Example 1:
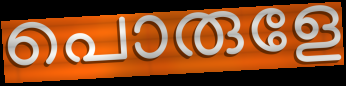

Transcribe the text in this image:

പൊരുളേ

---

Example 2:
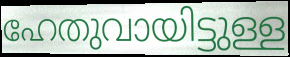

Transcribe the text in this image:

ഹേതുവായിട്ടുള്ള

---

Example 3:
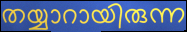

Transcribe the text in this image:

തയ്യാറായിരുന്ന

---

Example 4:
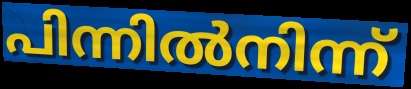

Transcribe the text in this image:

പിന്നിൽനിന്ന്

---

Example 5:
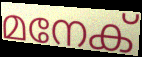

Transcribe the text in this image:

മനേക്